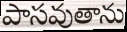
పాసవుతాను